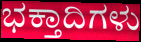
ಭಕ್ತಾದಿಗಳು